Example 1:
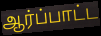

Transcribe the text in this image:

ஆர்ப்பாட்ட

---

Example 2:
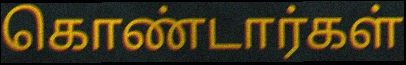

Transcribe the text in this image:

கொண்டார்கள்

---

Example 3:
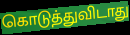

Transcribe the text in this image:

கொடுத்துவிடாது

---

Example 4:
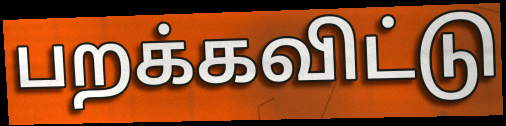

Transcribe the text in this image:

பறக்கவிட்டு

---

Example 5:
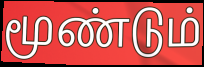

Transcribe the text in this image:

மூண்டும்